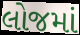
લોજમાં